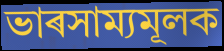
ভাৰসাম্যমূলক